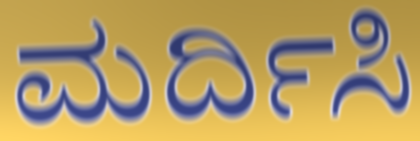
ಮರ್ದಿಸಿ